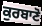
ਕੁਰਬਾਣੋ